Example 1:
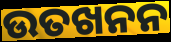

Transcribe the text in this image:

ଉତଖନନ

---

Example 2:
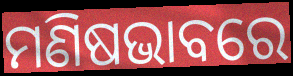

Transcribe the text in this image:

ମଣିଷଭାବରେ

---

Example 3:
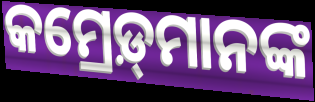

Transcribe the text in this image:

କମ୍ରେଡ଼୍‍ମାନଙ୍କ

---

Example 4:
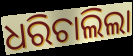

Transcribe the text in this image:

ଧରିଚାଲିଲା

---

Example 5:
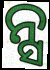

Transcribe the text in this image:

ନ୍ସ